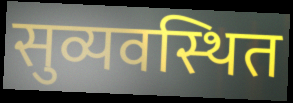
सुव्यवस्थित